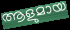
ആളുമായ